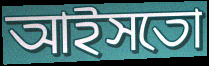
আইসতো